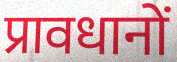
प्रावधानों